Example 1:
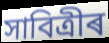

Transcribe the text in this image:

সাবিত্ৰীৰ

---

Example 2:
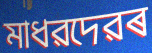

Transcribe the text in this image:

মাধৱদেৱৰ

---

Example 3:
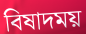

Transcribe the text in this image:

বিষাদময়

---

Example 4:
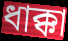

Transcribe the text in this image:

ধাক্কা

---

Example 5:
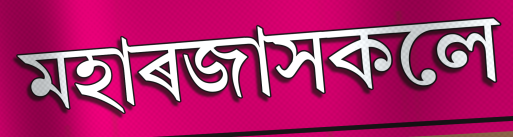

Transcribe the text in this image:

মহাৰজাসকলে